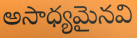
అసాధ్యమైనవి